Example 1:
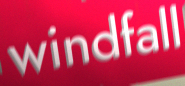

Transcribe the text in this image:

windfall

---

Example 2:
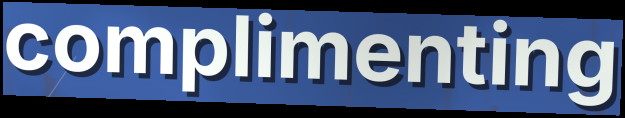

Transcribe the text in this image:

complimenting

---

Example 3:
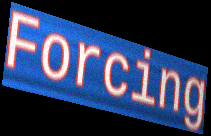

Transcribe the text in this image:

Forcing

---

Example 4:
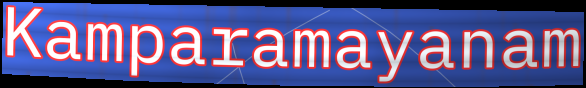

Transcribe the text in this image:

Kamparamayanam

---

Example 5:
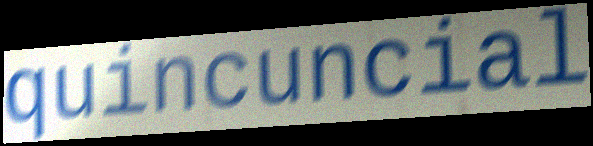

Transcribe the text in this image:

quincuncial